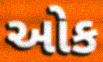
ઓક